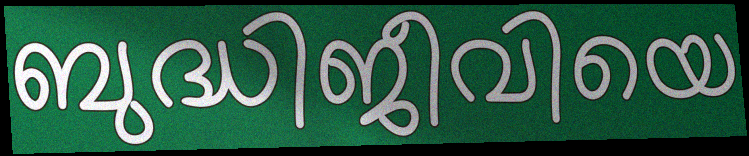
ബുദ്ധിജീവിയെ